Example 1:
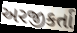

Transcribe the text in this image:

અરજીકર્તા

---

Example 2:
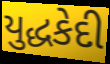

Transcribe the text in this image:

યુદ્ધકેદી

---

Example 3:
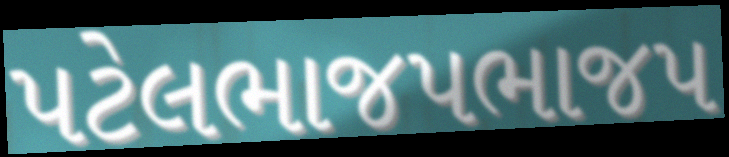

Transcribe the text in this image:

પટેલભાજપભાજપ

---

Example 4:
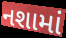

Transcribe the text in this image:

નશામાં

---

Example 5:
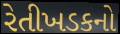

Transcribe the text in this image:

રેતીખડકનો